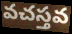
వచస్తవ